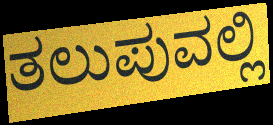
ತಲುಪುವಲ್ಲಿ